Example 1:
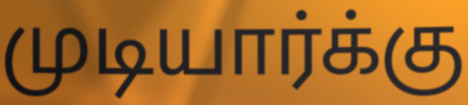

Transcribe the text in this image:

முடியார்க்கு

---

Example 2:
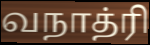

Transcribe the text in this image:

வநாத்ரி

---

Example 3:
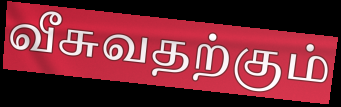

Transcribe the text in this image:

வீசுவதற்கும்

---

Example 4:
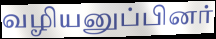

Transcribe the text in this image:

வழியனுப்பினர்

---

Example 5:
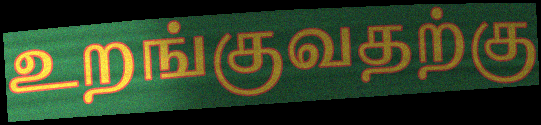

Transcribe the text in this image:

உறங்குவதற்கு